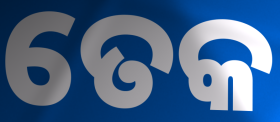
ତେକ